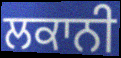
ਲਕਾਨੀ